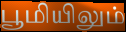
பூமியிலும்